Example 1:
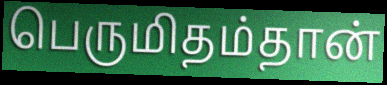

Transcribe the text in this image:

பெருமிதம்தான்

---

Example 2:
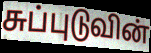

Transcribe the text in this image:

சுப்புடுவின்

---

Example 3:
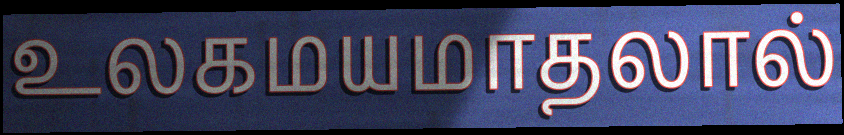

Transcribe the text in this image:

உலகமயமாதலால்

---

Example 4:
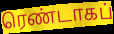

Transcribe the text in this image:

ரெண்டாகப்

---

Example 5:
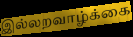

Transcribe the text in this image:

இல்லறவாழ்க்கை